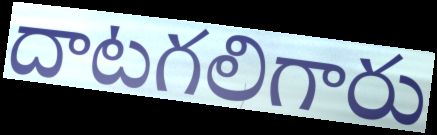
దాటగలిగారు